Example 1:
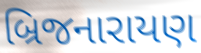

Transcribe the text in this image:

બ્રિજનારાયણ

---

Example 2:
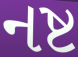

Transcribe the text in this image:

નષ્ટ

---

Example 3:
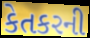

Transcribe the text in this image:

કેતકરની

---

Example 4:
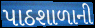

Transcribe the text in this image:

પાઠશાળાની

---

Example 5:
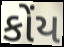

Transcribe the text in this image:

કોંય